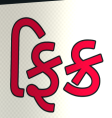
ફિક્ર